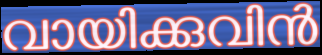
വായിക്കുവിൻ